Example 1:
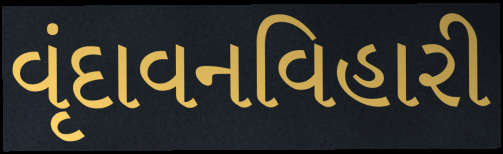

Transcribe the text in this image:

વૃંદાવનવિહારી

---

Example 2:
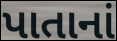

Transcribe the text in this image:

પાતાનાં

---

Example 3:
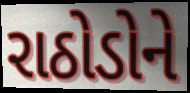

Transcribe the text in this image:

રાઠોડોને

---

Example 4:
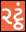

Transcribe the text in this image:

રટ્ઠં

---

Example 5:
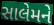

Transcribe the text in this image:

સાલેમને